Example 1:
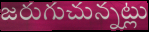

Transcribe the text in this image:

జరుగుచున్నట్లు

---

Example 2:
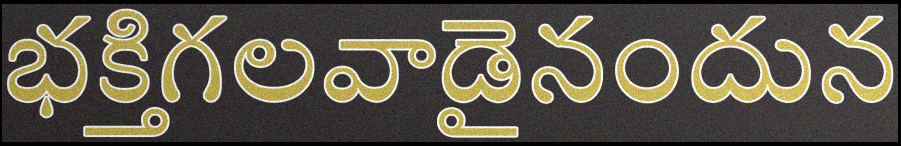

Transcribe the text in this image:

భక్తిగలవాడైనందున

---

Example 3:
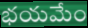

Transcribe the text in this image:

భయమేం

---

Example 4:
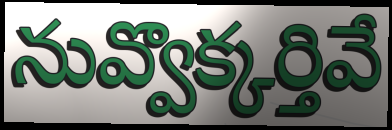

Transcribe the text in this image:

నువ్వొక్కర్తివే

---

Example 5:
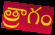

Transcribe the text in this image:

త్రాగం